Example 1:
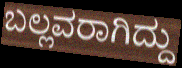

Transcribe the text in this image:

ಬಲ್ಲವರಾಗಿದ್ದು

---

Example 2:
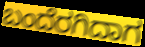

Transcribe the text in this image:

ಬಂದೆರಗಿದಾಗ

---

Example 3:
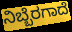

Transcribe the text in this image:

ನಿಬ್ಬೆರಗಾದೆ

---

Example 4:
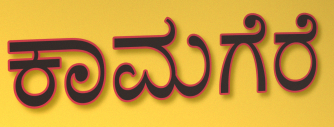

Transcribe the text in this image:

ಕಾಮಗೆರೆ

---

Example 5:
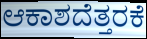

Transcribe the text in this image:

ಆಕಾಶದೆತ್ತರಕೆ